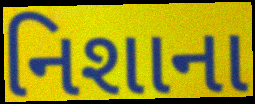
નિશાના